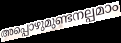
അപ്പൊഴുമുണ്ടനല്പമാം